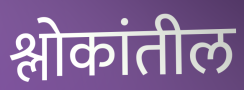
श्लोकांतील